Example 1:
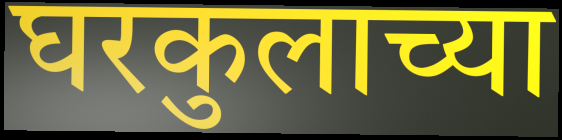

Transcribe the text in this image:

घरकुलाच्या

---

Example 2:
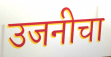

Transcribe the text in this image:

उजनीचा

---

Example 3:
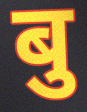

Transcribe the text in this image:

बु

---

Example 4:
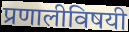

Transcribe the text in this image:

प्रणालीविषयी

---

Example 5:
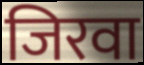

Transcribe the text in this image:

जिरवा